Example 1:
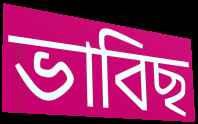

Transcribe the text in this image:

ভাবিছ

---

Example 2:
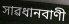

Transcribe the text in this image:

সাৱধানবাণী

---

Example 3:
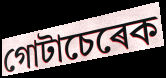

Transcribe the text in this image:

গোটাচেৰেক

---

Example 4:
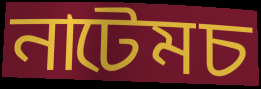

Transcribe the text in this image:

নাটেমচ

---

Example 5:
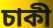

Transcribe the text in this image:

চাকী